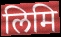
लिमि